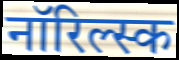
नॉरिल्स्क